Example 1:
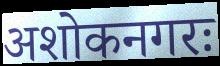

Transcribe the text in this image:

अशोकनगरः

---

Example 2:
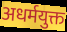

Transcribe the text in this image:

अधर्मयुक्त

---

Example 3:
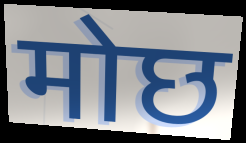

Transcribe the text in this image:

मोछ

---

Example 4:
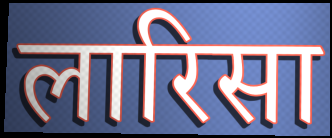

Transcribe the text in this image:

लारिसा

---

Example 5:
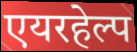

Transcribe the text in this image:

एयरहेल्प